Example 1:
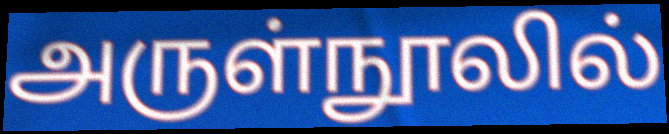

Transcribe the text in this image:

அருள்நூலில்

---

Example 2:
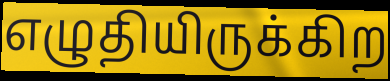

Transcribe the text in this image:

எழுதியிருக்கிற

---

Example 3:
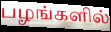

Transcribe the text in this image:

பழங்களில்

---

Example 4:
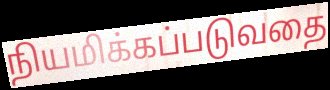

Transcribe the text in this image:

நியமிக்கப்படுவதை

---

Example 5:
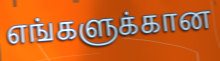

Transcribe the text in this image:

எங்களுக்கான